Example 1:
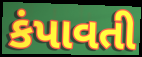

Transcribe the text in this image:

કંપાવતી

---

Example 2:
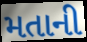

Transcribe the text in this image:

મતાની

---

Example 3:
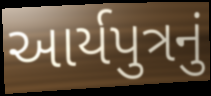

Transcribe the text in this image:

આર્યપુત્રનું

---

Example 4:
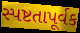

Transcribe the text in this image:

સ્પષ્ટતાપૂર્વક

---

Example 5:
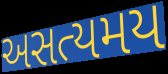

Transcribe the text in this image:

અસત્યમય